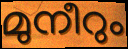
മുനീറും